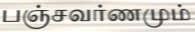
பஞ்சவர்ணமும்